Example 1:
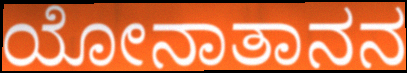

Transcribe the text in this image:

ಯೋನಾತಾನನ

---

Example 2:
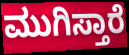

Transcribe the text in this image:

ಮುಗಿಸ್ತಾರೆ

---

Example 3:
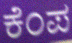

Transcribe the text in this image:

ಕೆಂಪ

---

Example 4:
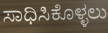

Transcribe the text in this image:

ಸಾಧಿಸಿಕೊಳ್ಳಲು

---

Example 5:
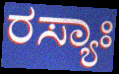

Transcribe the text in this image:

ರಸ್ಯಾಃ